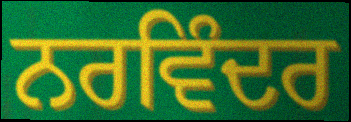
ਨਰਵਿੰਦਰ